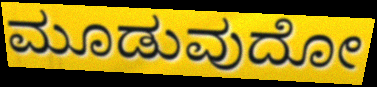
ಮೂಡುವುದೋ